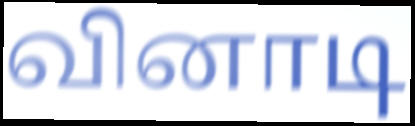
வினாடி